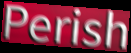
Perish